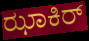
ಝಾಕಿರ್